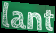
lant